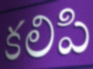
కలిపి